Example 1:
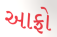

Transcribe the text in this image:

આફ્રો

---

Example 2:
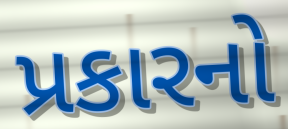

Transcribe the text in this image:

પ્રકારનો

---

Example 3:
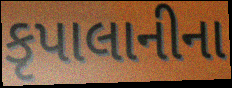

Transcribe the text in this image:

કૃપાલાનીના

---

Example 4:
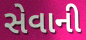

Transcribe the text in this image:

સેવાની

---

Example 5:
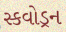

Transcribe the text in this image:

સ્કવોડ્રન